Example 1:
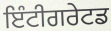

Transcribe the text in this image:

ਇੰਟੀਗਰੇਟਡ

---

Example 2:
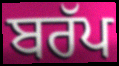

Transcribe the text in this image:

ਬਰੱਪ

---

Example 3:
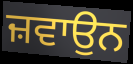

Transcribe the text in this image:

ਜ਼ਵਾਉਨ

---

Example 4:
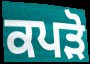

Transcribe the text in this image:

ਕਪੜੋ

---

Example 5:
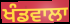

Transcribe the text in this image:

ਖੰਡਵਾਲਾ